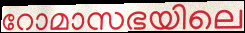
റോമാസഭയിലെ